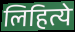
लिहित्ये